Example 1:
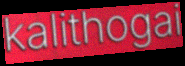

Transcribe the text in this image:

kalithogai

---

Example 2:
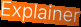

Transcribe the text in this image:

Explainer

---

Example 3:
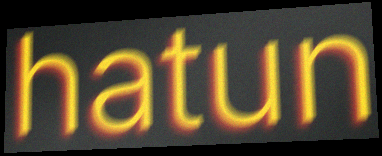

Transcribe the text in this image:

hatun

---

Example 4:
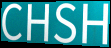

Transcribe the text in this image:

CHSH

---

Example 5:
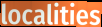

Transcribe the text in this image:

localities